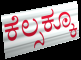
ಕೆಲ್ಸಕ್ಕೂ